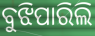
ବୁଝିପାରିଲି